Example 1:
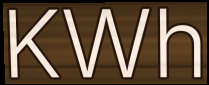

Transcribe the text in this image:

KWh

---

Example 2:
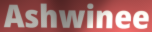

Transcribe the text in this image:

Ashwinee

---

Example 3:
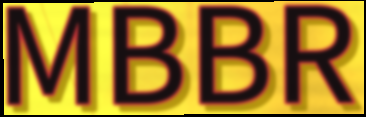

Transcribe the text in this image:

MBBR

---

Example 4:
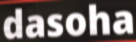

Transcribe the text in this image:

dasoha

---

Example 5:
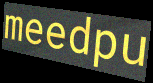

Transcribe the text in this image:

meedpu